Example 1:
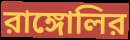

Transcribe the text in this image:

রাঙ্গোলির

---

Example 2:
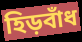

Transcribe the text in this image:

হিড়বাঁধ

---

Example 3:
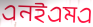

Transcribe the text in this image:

এনইএমএ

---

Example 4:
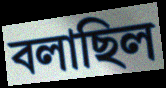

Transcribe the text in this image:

বলাছিল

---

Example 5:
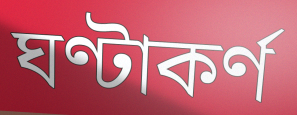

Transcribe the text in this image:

ঘণ্টাকর্ণ